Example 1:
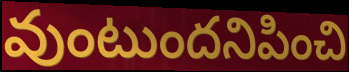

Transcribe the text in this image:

వుంటుందనిపించి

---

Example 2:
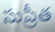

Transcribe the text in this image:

సుప్రీత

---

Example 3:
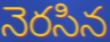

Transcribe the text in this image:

నెరసిన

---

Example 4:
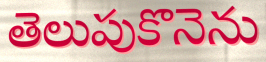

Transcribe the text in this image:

తెలుపుకొనెను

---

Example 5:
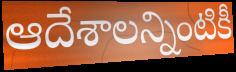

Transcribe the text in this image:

ఆదేశాలన్నింటికీ